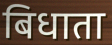
बिधाता